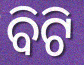
ବିଟି